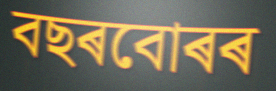
বছৰবোৰৰ